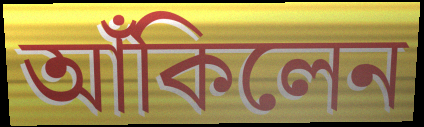
আঁকিলেন